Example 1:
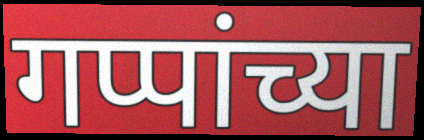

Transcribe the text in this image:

गप्पांच्या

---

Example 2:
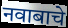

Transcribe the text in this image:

नवाबाचे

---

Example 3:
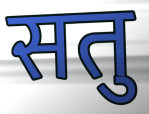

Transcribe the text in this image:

सतु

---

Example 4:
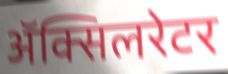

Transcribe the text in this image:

ॲक्सिलरेटर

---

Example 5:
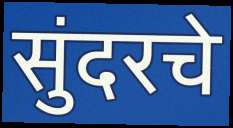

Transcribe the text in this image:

सुंदरचे